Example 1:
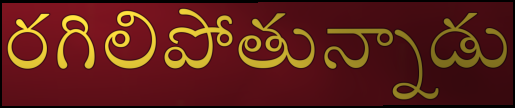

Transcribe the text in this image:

రగిలిపోతున్నాడు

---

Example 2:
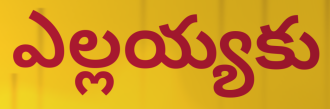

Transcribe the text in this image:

ఎల్లయ్యకు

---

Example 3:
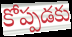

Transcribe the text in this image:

కోప్పడకు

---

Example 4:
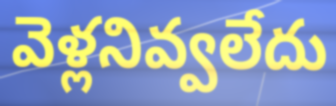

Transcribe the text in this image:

వెళ్లనివ్వలేదు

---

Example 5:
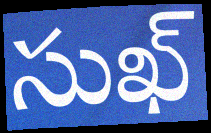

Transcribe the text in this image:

సుఖ్